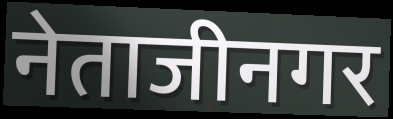
नेताजीनगर